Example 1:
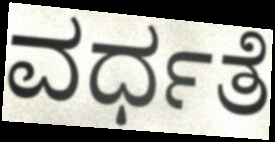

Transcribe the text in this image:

ವರ್ಧತೆ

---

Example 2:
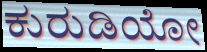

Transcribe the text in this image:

ಕುರುಡಿಯೋ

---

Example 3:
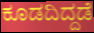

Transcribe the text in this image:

ಕೂಡದಿದ್ದಡೆ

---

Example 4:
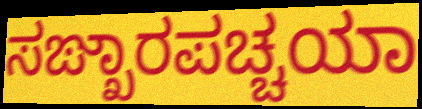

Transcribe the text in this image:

ಸಙ್ಖಾರಪಚ್ಚಯಾ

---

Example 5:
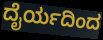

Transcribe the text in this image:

ದೈರ್ಯದಿಂದ